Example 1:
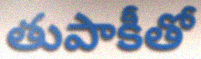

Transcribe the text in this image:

తుపాకీతో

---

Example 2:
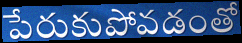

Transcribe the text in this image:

పేరుకుపోవడంతో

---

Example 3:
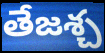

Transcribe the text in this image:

తేజశ్చ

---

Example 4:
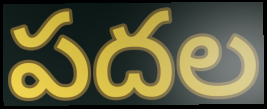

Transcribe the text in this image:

పదల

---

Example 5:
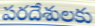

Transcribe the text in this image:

పరదేశులకు